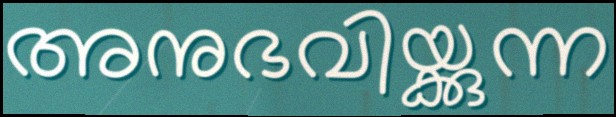
അനുഭവിയ്ക്കുന്ന